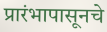
प्रारंभापासूनचे